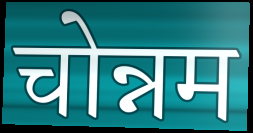
चोन्नम